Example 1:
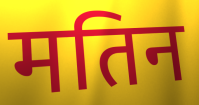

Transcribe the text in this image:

मतिन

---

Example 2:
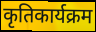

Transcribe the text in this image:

कृतिकार्यक्रम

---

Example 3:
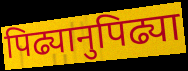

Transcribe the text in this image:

पिढ्यानुपिढ्या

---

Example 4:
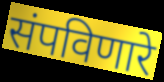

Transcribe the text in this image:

संपविणारे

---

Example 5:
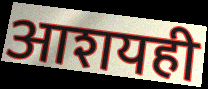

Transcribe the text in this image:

आशयही